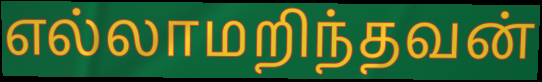
எல்லாமறிந்தவன்